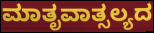
ಮಾತೃವಾತ್ಸಲ್ಯದ